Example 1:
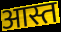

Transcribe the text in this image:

आस्त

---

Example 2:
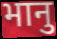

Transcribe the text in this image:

भानु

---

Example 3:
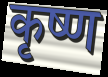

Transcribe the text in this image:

कृष्ण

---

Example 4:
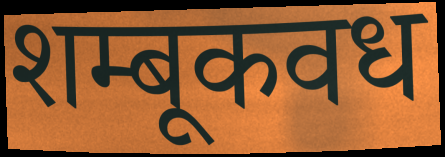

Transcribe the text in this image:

शम्बूकवध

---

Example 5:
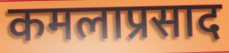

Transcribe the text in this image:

कमलाप्रसाद